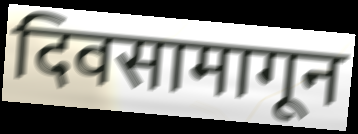
दिवसामागून